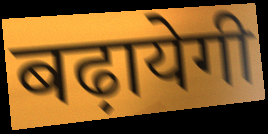
बढ़ायेगी